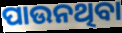
ପାଉନଥିବା